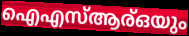
ഐഎസ്ആര്ഒയും